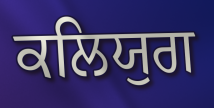
ਕਲਿਯੁਗ